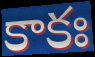
కాకః